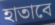
হাতাবে